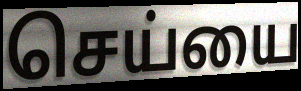
செய்யை